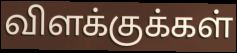
விளக்குக்கள்